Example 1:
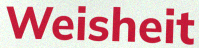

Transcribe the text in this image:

Weisheit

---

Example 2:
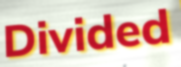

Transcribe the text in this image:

Divided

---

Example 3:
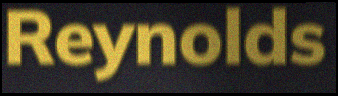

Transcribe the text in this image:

Reynolds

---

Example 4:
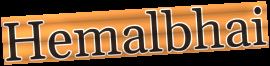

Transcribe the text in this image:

Hemalbhai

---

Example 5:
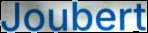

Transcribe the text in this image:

Joubert